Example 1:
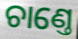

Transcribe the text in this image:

ଚାଣ୍ତେ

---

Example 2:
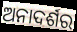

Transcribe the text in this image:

ଅନାଦର୍ଶର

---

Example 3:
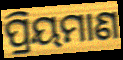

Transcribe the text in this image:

ପ୍ରିୟମାଣ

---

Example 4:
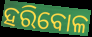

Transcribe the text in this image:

ହରିବୋଳ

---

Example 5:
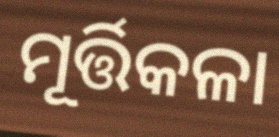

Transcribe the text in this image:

ମୂର୍ତ୍ତିକଳା